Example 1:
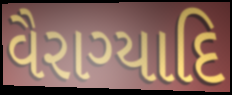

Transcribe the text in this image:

વૈરાગ્યાદિ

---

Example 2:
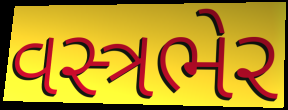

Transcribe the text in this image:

વસ્ત્રભેર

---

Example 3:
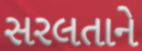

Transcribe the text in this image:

સરલતાને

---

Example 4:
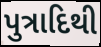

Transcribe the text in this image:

પુત્રાદિથી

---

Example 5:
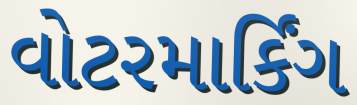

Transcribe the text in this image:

વોટરમાર્કિંગ